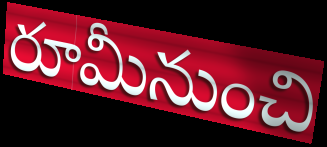
రూమీనుంచి